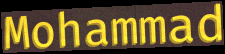
Mohammad